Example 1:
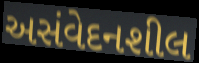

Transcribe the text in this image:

અસંવેદનશીલ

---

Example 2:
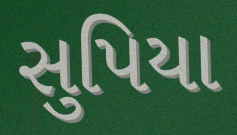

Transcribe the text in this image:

સુપિયા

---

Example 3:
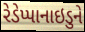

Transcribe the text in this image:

રેડેપ્પાનાઇડુને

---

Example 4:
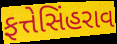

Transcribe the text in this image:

ફત્તેસિંહરાવ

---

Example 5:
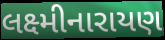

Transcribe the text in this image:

લક્ષ્મીનારાયણ